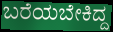
ಬರೆಯಬೇಕಿದ್ದ